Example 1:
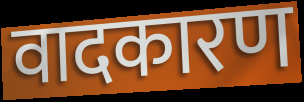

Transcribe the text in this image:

वादकारण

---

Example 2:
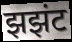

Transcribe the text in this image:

झझंट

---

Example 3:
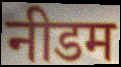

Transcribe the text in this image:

नीडम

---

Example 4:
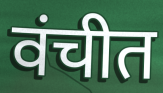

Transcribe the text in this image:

वंचीत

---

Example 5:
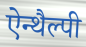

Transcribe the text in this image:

ऐन्थैल्पी